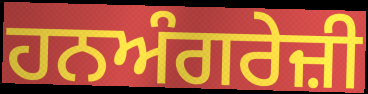
ਹਨਅੰਗਰੇਜ਼ੀ